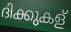
ദിക്കുകള്